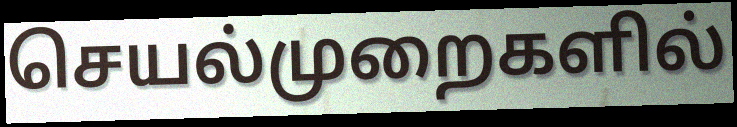
செயல்முறைகளில்